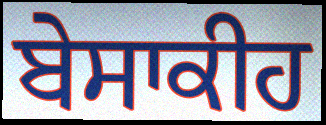
ਬੇਸਾਕੀਹ